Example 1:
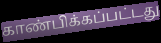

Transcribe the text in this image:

காண்பிக்கப்பட்டது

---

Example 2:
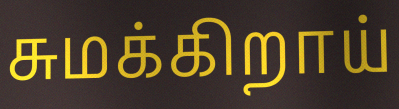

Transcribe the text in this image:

சுமக்கிறாய்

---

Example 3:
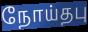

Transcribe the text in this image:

நோய்தபு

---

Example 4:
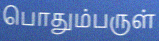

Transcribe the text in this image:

பொதும்பருள்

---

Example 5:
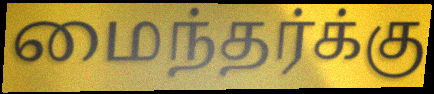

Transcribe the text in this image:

மைந்தர்க்கு